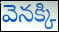
వెనక్కి